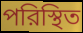
পরিস্থিত